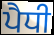
ਪੈਧੀ